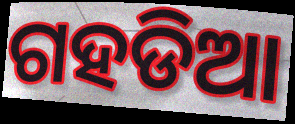
ଗହଡିଆ